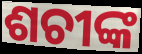
ଶଚୀଙ୍କ